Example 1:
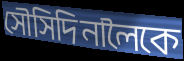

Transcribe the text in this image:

সৌসিদিনালৈকে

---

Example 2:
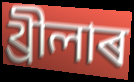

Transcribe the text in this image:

থ্ৰীলাৰ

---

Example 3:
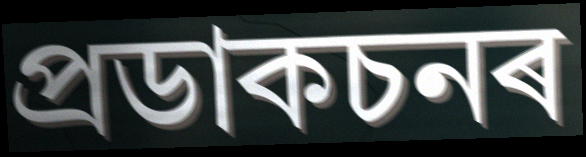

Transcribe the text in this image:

প্ৰডাকচনৰ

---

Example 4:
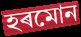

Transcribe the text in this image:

হৰমোন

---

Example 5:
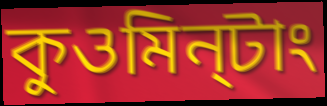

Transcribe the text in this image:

কুওমিন্‌টাং